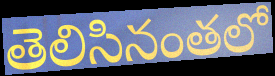
తెలిసినంతలో